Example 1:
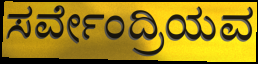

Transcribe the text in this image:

ಸರ್ವೇಂದ್ರಿಯವ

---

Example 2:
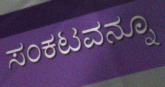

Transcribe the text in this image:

ಸಂಕಟವನ್ನೂ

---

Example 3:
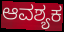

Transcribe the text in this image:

ಆವಶ್ಯಕ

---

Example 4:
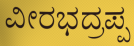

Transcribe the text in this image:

ವೀರಭದ್ರಪ್ಪ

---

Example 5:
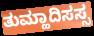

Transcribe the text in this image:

ತುಮ್ಹಾದಿಸಸ್ಸ